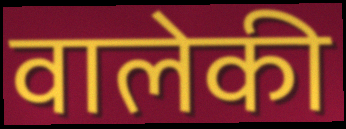
वालेकी